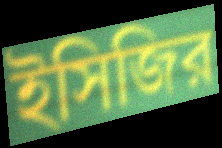
ইসিজির